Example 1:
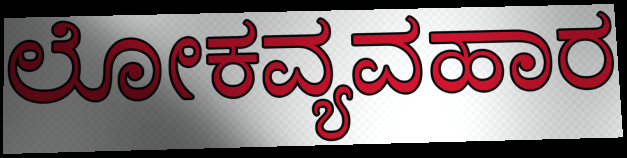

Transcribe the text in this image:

ಲೋಕವ್ಯವಹಾರ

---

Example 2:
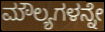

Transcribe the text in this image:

ಮೌಲ್ಯಗಳನ್ನೇ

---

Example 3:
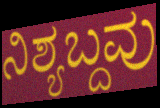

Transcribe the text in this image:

ನಿಶ್ಯಬ್ದವು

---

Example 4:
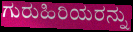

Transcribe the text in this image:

ಗುರುಹಿರಿಯರನ್ನು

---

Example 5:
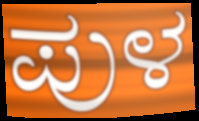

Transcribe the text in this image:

ಪುಳ